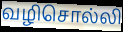
வழிசொல்லி